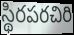
స్థిరపరచిరి